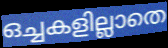
ഒച്ചകളില്ലാതെ